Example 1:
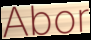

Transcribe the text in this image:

Abor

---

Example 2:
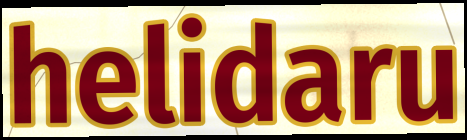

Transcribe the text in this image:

helidaru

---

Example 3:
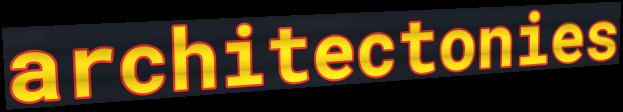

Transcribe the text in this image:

architectonies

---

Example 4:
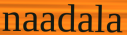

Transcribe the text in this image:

naadala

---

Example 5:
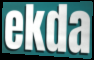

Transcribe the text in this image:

ekda